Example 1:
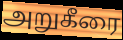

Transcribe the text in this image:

அறுகீரை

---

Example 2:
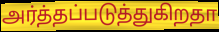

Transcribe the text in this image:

அர்த்தப்படுத்துகிறதா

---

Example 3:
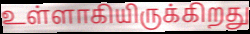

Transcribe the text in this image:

உள்ளாகியிருக்கிறது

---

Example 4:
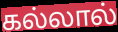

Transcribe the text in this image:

கல்லால்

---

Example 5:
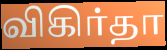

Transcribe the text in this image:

விகிர்தா